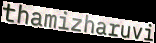
thamizharuvi